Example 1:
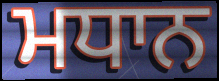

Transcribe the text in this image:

ਮਧਾਨ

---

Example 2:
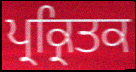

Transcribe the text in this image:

ਪ੍ਰਕ੍ਰਿਤਕ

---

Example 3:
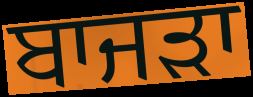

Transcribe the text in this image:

ਬਾਜਡ਼ਾ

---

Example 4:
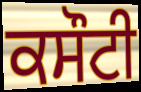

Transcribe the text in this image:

ਕਸੌਟੀ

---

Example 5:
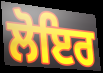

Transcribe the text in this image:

ਲੋਇਰ